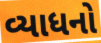
વ્યાધનો